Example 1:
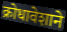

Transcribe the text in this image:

क्रोधावेशाने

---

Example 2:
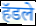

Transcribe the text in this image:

हॅडले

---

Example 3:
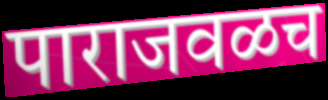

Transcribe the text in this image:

पाराजवळच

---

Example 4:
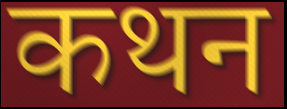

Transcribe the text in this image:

कथन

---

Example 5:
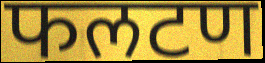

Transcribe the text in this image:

फलटण